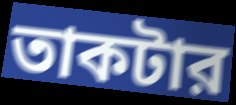
তাকটার